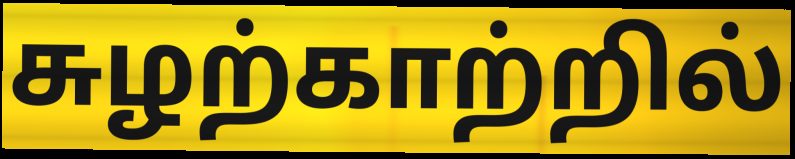
சுழற்காற்றில்